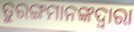
ତୁରଙ୍ଗମାନଙ୍କଦ୍ୱାରା